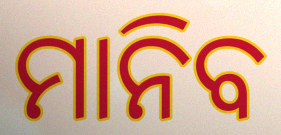
ମାନିବ